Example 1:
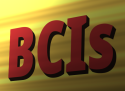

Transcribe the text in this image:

BCIs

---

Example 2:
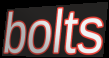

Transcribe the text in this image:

bolts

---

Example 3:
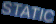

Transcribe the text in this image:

STATIC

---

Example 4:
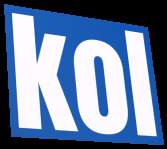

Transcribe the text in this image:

kol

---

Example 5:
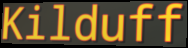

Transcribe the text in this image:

Kilduff